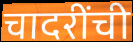
चादरींची